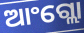
ଆଂଗ୍ଲୋ